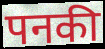
पनकी